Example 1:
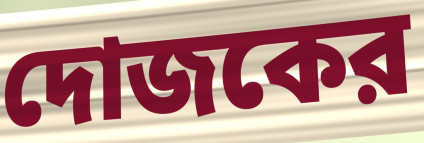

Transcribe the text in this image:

দোজকের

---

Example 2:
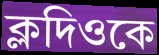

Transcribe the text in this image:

ক্লদিওকে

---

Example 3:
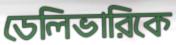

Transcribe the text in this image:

ডেলিভারিকে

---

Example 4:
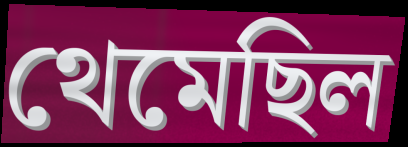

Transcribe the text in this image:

থেমেছিল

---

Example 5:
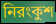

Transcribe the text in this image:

নিরংকুশ